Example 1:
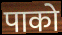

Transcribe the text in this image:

पाको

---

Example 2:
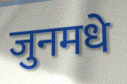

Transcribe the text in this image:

जुनमधे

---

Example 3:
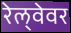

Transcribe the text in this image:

रेल्वेवर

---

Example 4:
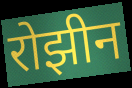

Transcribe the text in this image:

रोझीन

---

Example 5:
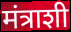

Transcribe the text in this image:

मंत्राशी